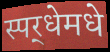
स्पर्धेमधे